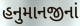
હનુમાનજીનાં